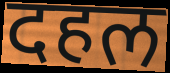
दहल